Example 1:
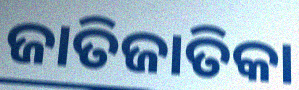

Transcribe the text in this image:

ଜାତିଜାତିକା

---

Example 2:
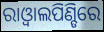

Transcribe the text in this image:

ରାଓ୍ଵାଲପିଣ୍ଡିରେ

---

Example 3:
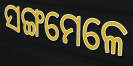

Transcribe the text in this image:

ସଙ୍ଗମେଳେ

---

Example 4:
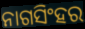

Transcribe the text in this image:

ନାଗସିଂହର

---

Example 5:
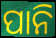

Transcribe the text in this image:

ପାନି